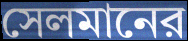
সেলমানের